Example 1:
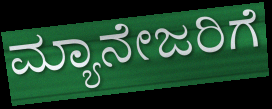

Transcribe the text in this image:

ಮ್ಯಾನೇಜರಿಗೆ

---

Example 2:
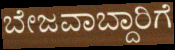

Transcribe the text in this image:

ಬೇಜವಾಬ್ದಾರಿಗೆ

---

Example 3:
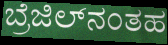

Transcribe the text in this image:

ಬ್ರೆಜಿಲ್‌ನಂತಹ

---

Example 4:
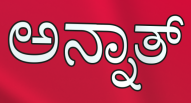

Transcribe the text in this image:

ಅನ್ನಾತ್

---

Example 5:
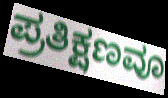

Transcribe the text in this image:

ಪ್ರತಿಕ್ಷಣವೂ